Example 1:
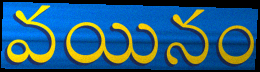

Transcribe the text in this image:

వయినం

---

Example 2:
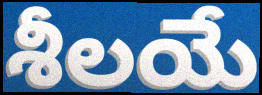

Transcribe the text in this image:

శీలయే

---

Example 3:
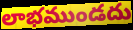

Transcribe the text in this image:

లాభముండదు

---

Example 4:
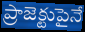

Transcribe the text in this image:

ప్రాజెక్టుపైనే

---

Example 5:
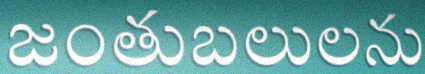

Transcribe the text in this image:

జంతుబలులను